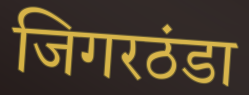
जिगरठंडा